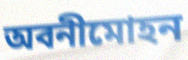
অবনীমোহন